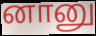
னானு